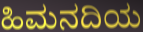
ಹಿಮನದಿಯ